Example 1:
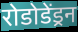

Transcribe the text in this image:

रोडोडेंड्रन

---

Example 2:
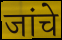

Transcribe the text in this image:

जांचे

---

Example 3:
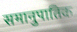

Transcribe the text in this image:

समानुपातिक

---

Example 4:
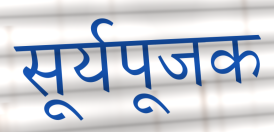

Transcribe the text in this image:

सूर्यपूजक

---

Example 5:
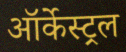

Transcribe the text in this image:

ऑर्केस्ट्रल